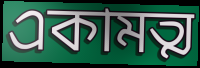
একামত্ম